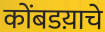
कोंबडय़ाचे